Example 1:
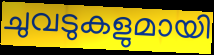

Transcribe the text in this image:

ചുവടുകളുമായി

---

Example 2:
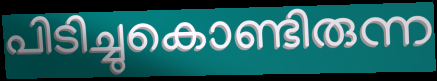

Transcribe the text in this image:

പിടിച്ചുകൊണ്ടിരുന്ന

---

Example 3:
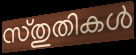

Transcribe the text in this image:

സ്തുതികൾ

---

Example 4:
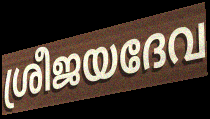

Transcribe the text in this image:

ശ്രീജയദേവ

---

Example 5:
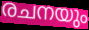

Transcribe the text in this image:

രചനയും